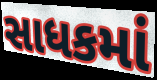
સાધકમાં